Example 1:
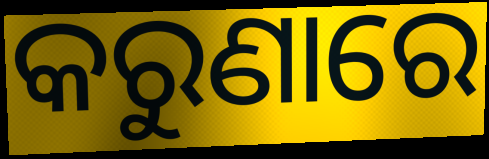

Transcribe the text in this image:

କରୁଣାରେ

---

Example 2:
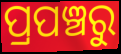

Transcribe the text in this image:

ପ୍ରପଞ୍ଚରୁ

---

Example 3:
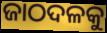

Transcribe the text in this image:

ଜାଠଦଳକୁ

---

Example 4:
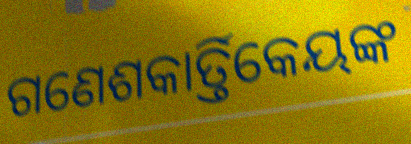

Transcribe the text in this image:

ଗଣେଶକାର୍ତ୍ତିକେୟଙ୍କ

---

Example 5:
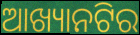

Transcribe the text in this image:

ଆଖ୍ୟାନଟିର